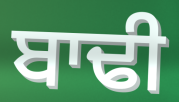
ਬਾਢੀ